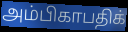
அம்பிகாபதிக்